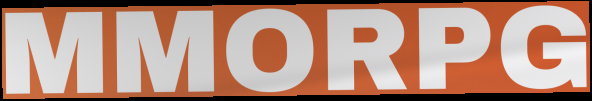
MMORPG